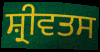
ਸ਼੍ਰੀਵਤਸ